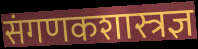
संगणकशास्त्रज्ञ